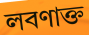
লবণাক্ত